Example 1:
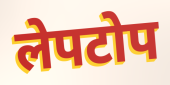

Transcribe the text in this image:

लेपटोप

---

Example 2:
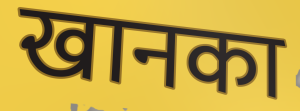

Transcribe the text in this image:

खानका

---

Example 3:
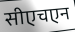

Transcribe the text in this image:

सीएचएन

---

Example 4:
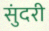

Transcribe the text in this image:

सुंदरी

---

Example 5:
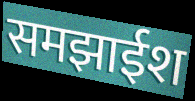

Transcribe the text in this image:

समझाईश